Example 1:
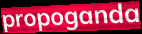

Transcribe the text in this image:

propoganda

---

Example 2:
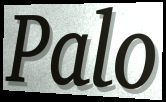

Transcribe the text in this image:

Palo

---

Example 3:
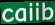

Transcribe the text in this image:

caiib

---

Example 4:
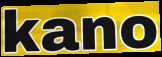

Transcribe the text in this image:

kano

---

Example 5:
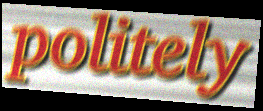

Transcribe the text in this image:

politely